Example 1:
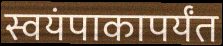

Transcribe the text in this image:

स्वयंपाकापर्यंत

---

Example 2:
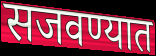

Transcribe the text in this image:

सजवण्यात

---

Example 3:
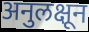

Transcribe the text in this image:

अनुलक्षून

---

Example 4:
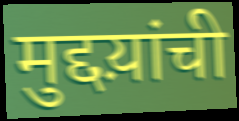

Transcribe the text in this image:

मुद्दय़ांची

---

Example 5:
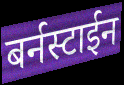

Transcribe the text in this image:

बर्नस्टाईन